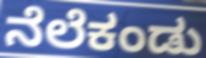
ನೆಲೆಕಂಡು